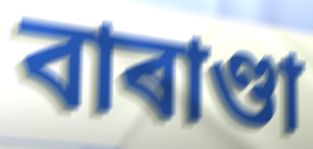
বাৰাণ্ডা